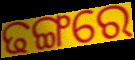
ଢଙ୍ଗରେ